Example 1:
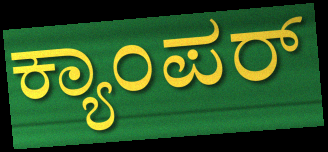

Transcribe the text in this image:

ಕ್ಯಾಂಪರ್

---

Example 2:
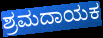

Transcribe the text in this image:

ಶ್ರಮದಾಯಕ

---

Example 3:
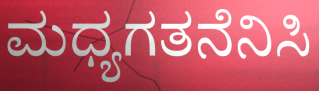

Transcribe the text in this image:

ಮಧ್ಯಗತನೆನಿಸಿ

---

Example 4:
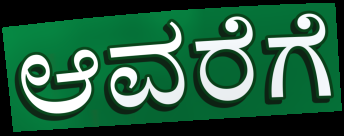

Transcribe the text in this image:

ಆವರೆಗೆ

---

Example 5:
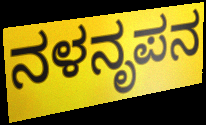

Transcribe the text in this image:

ನಳನೃಪನ